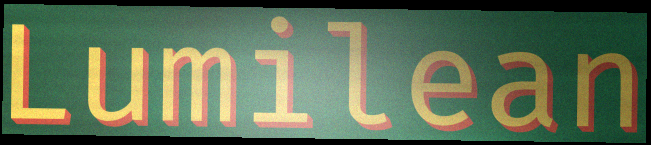
Lumilean